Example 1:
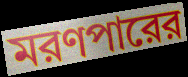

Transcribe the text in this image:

মরণপারের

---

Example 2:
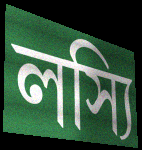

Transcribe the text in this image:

লস্যি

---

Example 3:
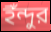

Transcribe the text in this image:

ইঁন্দুর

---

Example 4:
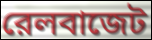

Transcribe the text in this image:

রেলবাজেট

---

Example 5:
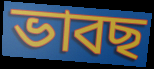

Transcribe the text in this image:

ভাবছ